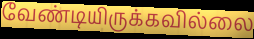
வேண்டியிருக்கவில்லை